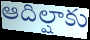
ఆదిల్షాకు